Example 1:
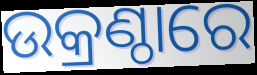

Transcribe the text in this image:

ଉକ୍ରଣ୍ଠାରେ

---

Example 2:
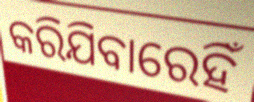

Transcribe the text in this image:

କରିଯିବାରେହିଁ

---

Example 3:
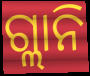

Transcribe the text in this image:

ଗ୍ଲାନି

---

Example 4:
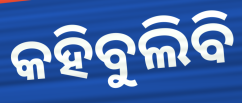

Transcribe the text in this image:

କହିବୁଲିବି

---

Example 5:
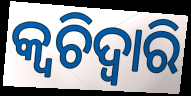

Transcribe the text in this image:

କ୍ଵଚିଦ୍ୱାରି